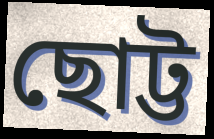
ছোট্ট